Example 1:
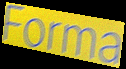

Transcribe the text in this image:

Forma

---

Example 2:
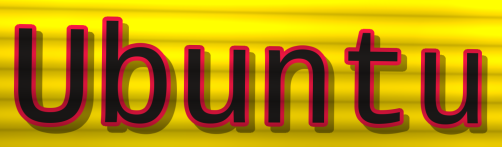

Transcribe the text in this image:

Ubuntu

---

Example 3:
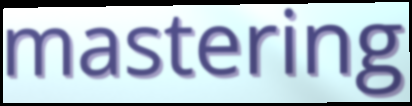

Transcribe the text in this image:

mastering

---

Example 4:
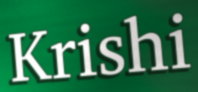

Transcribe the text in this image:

Krishi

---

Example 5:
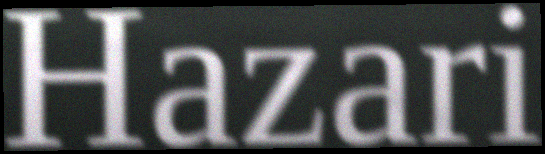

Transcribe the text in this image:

Hazari